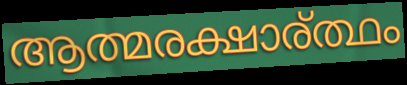
ആത്മരക്ഷാര്ത്ഥം